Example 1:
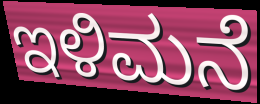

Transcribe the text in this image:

ಇಳಿಮನೆ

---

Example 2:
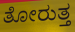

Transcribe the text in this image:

ತೋರುತ್ತ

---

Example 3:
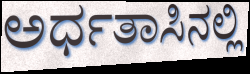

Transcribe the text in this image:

ಅರ್ಧತಾಸಿನಲ್ಲಿ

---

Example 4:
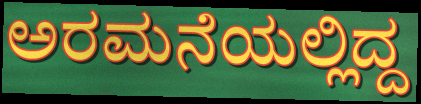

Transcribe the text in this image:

ಅರಮನೆಯಲ್ಲಿದ್ದ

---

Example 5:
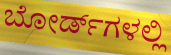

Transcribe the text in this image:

ಬೋರ್ಡ್‌ಗಳಲ್ಲಿ